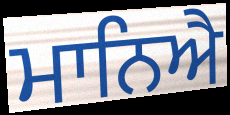
ਮਾਨਿਐ